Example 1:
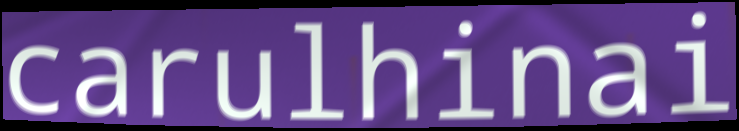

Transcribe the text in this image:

carulhinai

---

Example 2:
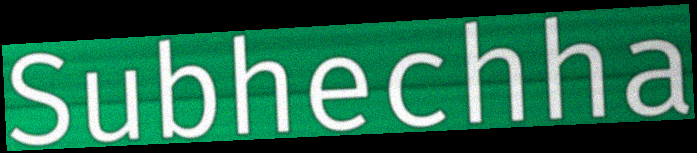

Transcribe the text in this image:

Subhechha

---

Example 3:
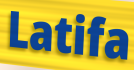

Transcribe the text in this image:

Latifa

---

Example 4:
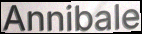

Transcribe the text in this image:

Annibale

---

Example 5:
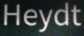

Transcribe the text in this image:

Heydt